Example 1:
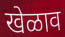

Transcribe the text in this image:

खेळाव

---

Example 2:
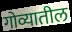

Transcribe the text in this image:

गोव्यातील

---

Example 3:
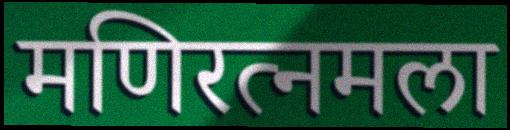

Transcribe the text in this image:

मणिरत्नमला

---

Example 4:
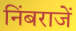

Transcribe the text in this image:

निंबराजें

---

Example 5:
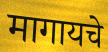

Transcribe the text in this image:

मागायचे